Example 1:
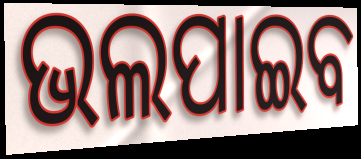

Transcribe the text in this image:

ଭଲପାଇବ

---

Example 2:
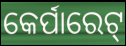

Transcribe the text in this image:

କେର୍ପାରେଟ୍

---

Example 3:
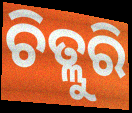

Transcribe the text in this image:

ଚିତ୍ଲୁରି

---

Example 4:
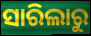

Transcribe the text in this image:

ସାରିଲାରୁ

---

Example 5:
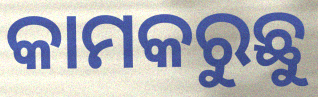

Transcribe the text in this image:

କାମକରୁଛୁ